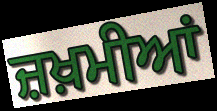
ਜ਼ਖ਼ਮੀਆਂ